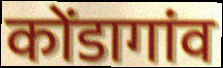
कोंडागांव